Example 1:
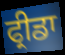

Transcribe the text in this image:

ਫ੍ਰੀਡਾ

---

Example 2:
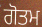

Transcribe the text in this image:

ਗੋਤਮ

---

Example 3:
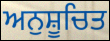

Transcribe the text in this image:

ਅਨੁਸ਼ੂਚਿਤ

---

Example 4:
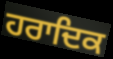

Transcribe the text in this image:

ਹਰਾਦਿਕ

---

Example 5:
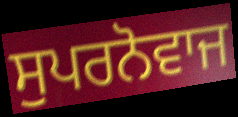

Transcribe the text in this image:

ਸੁਪਰਨੋਵਾਜ